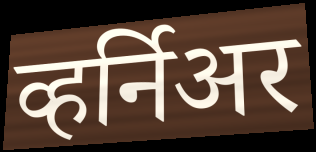
व्हर्निअर